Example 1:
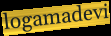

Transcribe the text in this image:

logamadevi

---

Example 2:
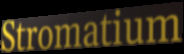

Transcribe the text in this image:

Stromatium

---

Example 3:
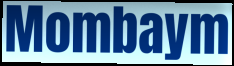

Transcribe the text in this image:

Mombaym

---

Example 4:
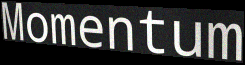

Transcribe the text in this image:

Momentum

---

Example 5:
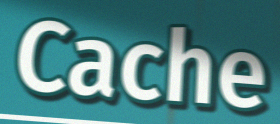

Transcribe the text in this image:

Cache